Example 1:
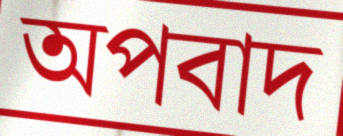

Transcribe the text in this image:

অপবাদ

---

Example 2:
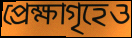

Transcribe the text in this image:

প্রেক্ষাগৃহেও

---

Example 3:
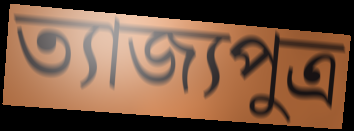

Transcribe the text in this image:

ত্যাজ্যপুত্র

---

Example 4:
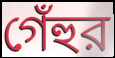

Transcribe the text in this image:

গেঁহুর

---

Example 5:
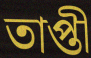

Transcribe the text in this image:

তাপ্তী